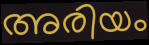
അരിയം